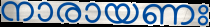
നാരായണഃ